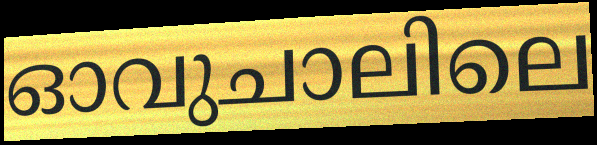
ഓവുചാലിലെ